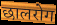
छालरोग